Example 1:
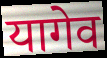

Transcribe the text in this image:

यागेव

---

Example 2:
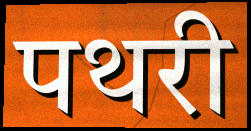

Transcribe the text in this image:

पथरी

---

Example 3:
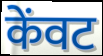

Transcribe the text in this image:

केंवट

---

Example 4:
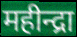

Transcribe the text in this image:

महीन्द्रा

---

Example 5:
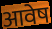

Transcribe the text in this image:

आवेष